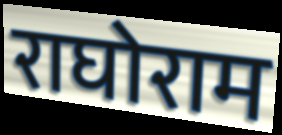
राघोराम